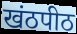
खंठपीठ